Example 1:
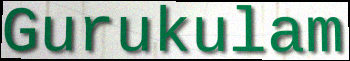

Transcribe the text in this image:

Gurukulam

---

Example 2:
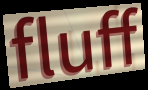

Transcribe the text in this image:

fluff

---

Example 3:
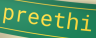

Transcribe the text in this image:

preethi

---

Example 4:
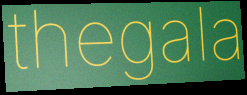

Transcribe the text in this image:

thegala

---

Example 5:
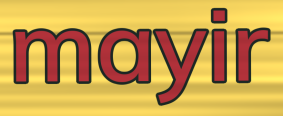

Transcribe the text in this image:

mayir